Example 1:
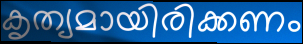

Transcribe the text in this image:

കൃത്യമായിരിക്കണം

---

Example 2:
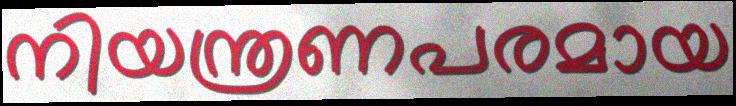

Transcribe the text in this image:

നിയന്ത്രണപരമായ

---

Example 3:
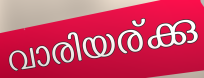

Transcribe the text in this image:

വാരിയര്ക്കു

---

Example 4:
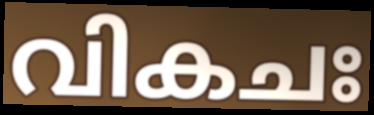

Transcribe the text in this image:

വികചഃ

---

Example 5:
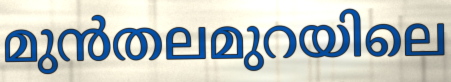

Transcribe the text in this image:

മുൻതലമുറയിലെ